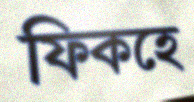
ফিকহে